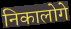
निकालोगे